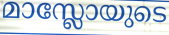
മാസ്ലോയുടെ